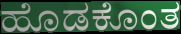
ಹೊಡಕೊಂತ